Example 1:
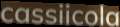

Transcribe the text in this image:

cassiicola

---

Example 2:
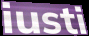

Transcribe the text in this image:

iusti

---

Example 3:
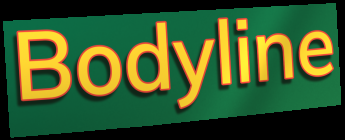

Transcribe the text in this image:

Bodyline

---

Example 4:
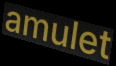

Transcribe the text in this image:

amulet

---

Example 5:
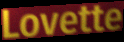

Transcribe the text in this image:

Lovette